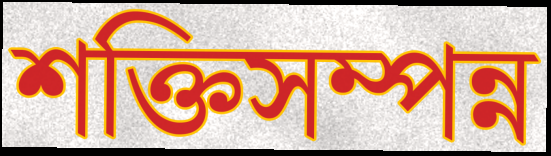
শক্তিসম্পন্ন